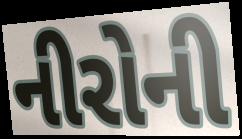
નીરોની